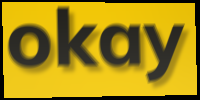
okay